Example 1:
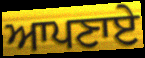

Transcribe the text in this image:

ਆਪਣਾਏ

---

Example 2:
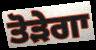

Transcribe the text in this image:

ਤੋੜੇਗਾ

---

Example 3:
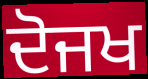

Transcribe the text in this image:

ਦੋਜਖ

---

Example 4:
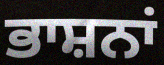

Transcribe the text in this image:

ਭਾਸ਼ਨਾਂ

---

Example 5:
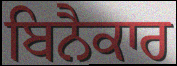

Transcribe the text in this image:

ਬਿਨੈਕਾਰ